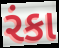
રંકા